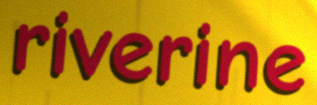
riverine